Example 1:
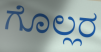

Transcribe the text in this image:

ಗೊಲ್ಲರ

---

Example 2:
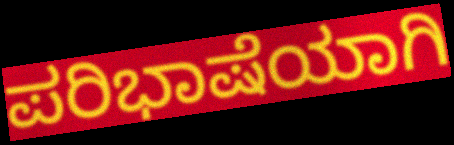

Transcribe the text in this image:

ಪರಿಭಾಷೆಯಾಗಿ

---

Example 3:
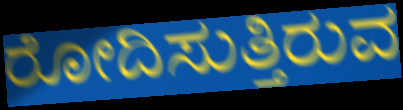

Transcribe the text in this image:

ರೋದಿಸುತ್ತಿರುವ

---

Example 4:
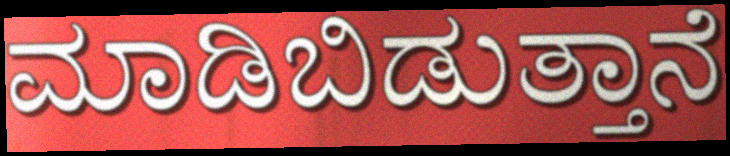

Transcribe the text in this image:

ಮಾಡಿಬಿಡುತ್ತಾನೆ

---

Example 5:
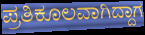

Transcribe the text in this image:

ಪ್ರತಿಕೂಲವಾಗಿದ್ದಾಗ